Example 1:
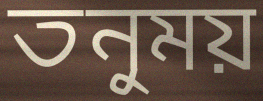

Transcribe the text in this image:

তনুময়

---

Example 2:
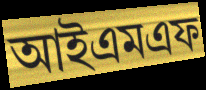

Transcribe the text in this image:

আইএমএফ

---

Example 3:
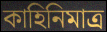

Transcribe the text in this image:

কাহিনিমাত্র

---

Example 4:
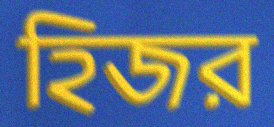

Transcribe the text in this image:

হিজর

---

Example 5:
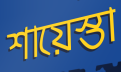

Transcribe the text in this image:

শায়েস্তা